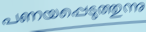
പണയപ്പെടുത്തുന്നു